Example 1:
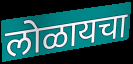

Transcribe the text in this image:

लोळायचा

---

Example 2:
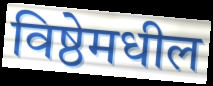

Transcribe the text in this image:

विष्ठेमधील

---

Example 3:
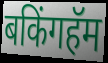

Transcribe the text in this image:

बकिंगहॅम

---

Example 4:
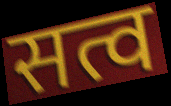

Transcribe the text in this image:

सत्व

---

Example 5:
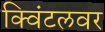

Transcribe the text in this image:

क्विंटलवर